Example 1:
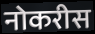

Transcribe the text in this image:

नोकरीस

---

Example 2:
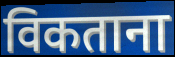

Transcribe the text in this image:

विकताना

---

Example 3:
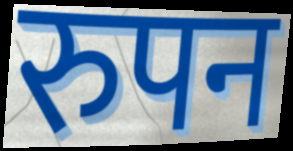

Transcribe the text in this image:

रुपन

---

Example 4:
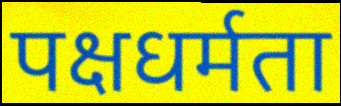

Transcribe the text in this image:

पक्षधर्मता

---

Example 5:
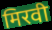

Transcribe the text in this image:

मिरवी